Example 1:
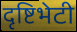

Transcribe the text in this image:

दृष्टिभेटी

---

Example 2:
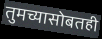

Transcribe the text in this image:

तुमच्यासोबतही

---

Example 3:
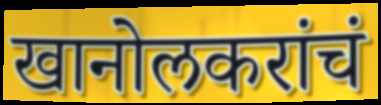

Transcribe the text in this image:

खानोलकरांचं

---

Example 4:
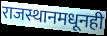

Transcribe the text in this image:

राजस्थानमधूनही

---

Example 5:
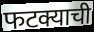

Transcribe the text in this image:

फटक्याची